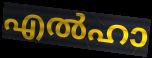
എൽഹാ